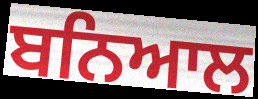
ਬਨਿਆਲ